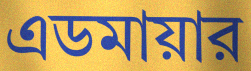
এডমায়ার